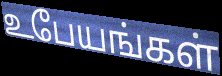
உபேயங்கள்